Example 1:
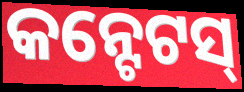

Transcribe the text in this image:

କନ୍ଟେଟସ୍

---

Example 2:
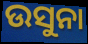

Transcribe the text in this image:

ଉସୁନା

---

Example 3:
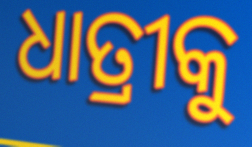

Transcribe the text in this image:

ଧାତ୍ରୀକୁ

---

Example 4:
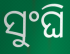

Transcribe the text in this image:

ସୁଂଘି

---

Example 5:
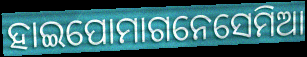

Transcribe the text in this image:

ହାଇପୋମାଗନେସେମିଆ